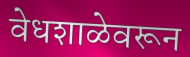
वेधशाळेवरून